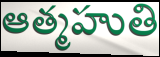
ఆత్మహుతి